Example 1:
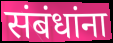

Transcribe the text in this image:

संबंधांना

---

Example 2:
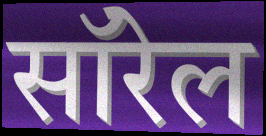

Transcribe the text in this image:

सॉरेल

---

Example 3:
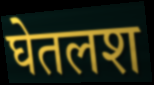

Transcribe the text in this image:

घेतलश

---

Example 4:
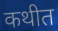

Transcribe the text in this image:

कथीत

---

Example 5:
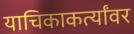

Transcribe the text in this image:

याचिकाकर्त्यांवर